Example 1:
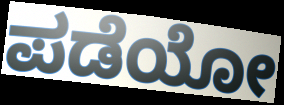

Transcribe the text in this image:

ಪಡೆಯೋ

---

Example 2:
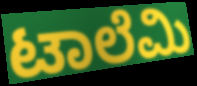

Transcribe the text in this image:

ಟಾಲೆಮಿ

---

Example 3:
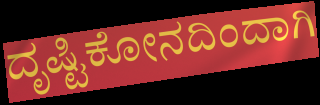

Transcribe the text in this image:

ದೃಷ್ಟಿಕೋನದಿಂದಾಗಿ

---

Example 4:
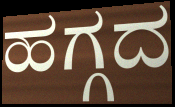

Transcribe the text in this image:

ಹಗ್ಗದ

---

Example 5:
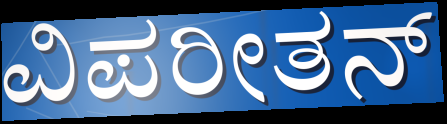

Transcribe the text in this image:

ವಿಪರೀತನ್